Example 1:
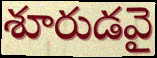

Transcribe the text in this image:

శూరుడవై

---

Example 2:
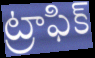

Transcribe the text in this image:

ట్రాఫిక్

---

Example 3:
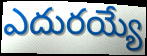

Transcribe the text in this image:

ఎదురయ్యే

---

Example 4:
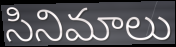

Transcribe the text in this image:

సినిమాలు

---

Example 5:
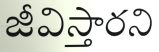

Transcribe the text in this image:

జీవిస్తారని